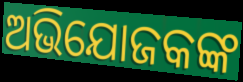
ଅଭିଯୋଜକଙ୍କ